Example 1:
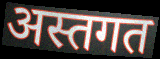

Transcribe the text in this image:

अस्तगत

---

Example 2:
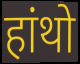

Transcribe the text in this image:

हांथो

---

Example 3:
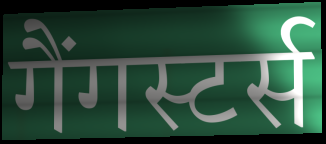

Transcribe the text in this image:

गैंगस्टर्स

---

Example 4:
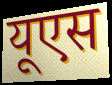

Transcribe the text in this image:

यूएस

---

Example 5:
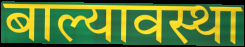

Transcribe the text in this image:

बाल्यावस्था